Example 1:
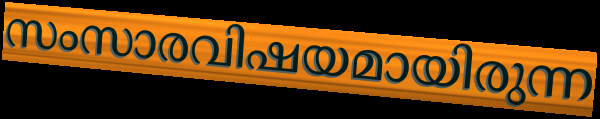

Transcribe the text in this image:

സംസാരവിഷയമായിരുന്ന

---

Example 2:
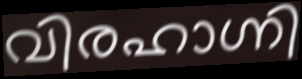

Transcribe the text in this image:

വിരഹാഗ്നി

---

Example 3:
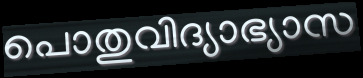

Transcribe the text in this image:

പൊതുവിദ്യാഭ്യാസ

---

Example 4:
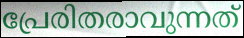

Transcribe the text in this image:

പ്രേരിതരാവുന്നത്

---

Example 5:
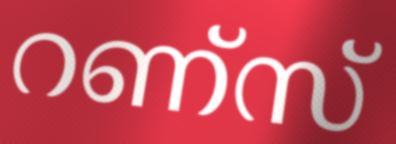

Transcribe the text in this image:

റണ്സ്